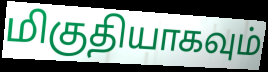
மிகுதியாகவும்